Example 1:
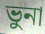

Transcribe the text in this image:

ভুনা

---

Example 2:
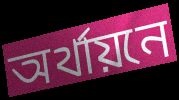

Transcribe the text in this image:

অর্থায়নে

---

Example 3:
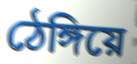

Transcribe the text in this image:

ঠেঙ্গিয়ে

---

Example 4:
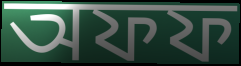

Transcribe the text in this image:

অফফ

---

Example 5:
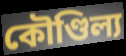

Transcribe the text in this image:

কৌণ্ডিল্য